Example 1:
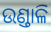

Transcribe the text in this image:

ଉଣ୍ଡାଳି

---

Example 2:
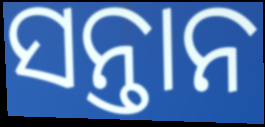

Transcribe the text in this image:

ସନ୍ତାନ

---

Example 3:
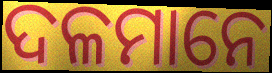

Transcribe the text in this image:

ଦଳମାନେ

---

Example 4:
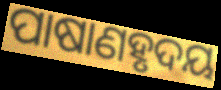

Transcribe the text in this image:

ପାଷାଣହୃଦୟ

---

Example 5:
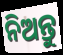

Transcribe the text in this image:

ନିଅନ୍ତୁ